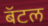
बॅटल